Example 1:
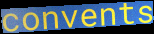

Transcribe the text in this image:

convents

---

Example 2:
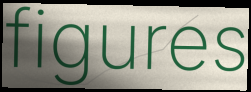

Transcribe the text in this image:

figures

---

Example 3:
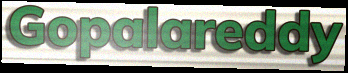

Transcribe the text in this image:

Gopalareddy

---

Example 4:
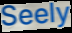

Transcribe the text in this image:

Seely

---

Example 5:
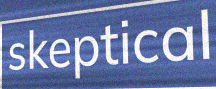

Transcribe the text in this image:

skeptical